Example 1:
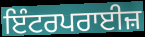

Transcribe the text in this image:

ਇੰਟਰਪਰਾਈਜ਼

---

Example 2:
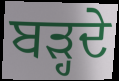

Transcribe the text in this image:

ਬੜ੍ਹਦੇ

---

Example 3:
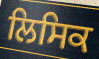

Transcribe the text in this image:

ਲਿਸਿਕ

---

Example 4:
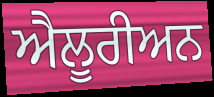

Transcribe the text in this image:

ਐਲੂਰੀਅਨ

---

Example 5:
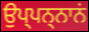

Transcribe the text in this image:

ਉਪ੍ਪਨ੍ਨਾਨਂ